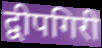
द्वीपगिरी